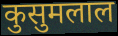
कुसुमलाल